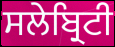
ਸਲੇਬ੍ਰਿਟੀ